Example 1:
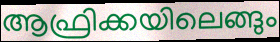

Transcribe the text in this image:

ആഫ്രിക്കയിലെങ്ങും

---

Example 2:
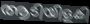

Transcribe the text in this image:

ആടിയിളകി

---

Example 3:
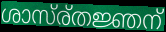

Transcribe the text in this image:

ശാസ്ര്തജ്ഞന്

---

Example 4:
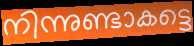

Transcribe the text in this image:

നിന്നുണ്ടാകട്ടെ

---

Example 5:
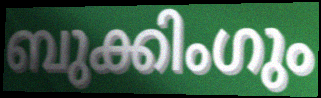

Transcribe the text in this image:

ബുക്കിംഗും